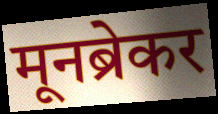
मूनब्रेकर